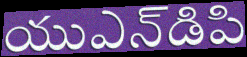
యుఎన్‌డిపి